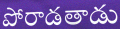
పోరాడతాడు